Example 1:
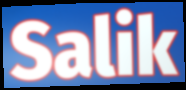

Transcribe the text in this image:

Salik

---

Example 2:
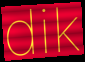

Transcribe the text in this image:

dik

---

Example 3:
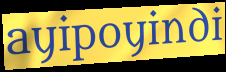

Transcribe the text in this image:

ayipoyindi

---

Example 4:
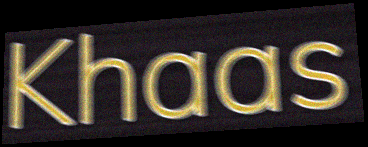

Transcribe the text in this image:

Khaas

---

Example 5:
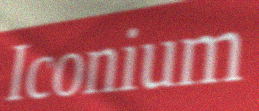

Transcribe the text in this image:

Iconium